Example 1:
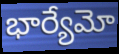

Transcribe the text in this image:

భార్యేమో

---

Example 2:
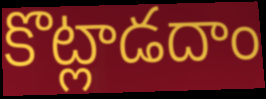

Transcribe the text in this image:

కొట్లాడదాం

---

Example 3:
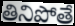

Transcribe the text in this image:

తినిపోతే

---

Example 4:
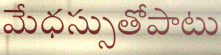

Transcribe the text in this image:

మేధస్సుతోపాటు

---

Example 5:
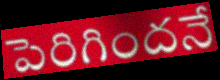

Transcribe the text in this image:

పెరిగిందనే